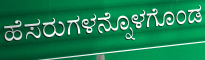
ಹೆಸರುಗಳನ್ನೊಳಗೊಂಡ